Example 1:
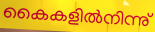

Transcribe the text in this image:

കൈകളിൽനിന്നു്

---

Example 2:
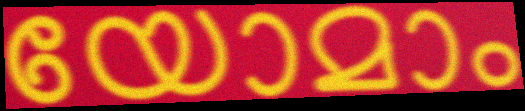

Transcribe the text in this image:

യോമാം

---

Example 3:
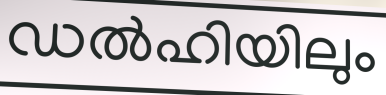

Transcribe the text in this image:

ഡൽഹിയിലും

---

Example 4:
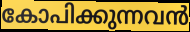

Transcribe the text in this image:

കോപിക്കുന്നവൻ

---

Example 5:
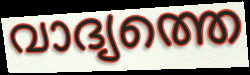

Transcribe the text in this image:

വാദ്യത്തെ